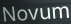
Novum